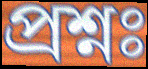
প্রশ্নঃ